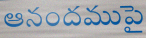
ఆనందముపై